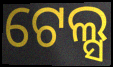
ଟେଲ୍ସ